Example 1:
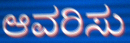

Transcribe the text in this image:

ಆವರಿಸು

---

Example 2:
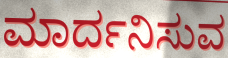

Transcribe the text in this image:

ಮಾರ್ದನಿಸುವ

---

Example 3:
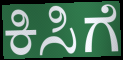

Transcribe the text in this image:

ಕಿಸಿಗೆ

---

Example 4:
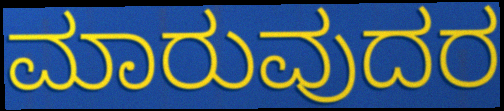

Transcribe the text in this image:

ಮಾರುವುದರ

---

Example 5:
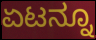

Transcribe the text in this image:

ಏಟನ್ನೂ